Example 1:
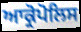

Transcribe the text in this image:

ਆਕ੍ਰੋਪੋਲਿਸ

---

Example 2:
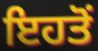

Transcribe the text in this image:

ਇਹਤੋਂ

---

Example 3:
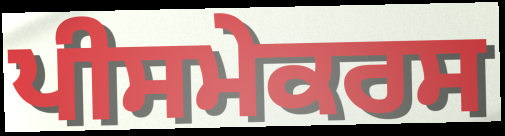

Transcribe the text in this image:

ਪੀਸਮੇਕਰਸ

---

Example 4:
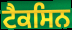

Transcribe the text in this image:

ਟੈਕਸਿਨ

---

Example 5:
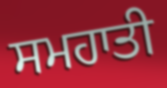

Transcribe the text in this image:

ਸਮਹਾਤੀ